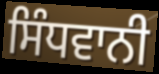
ਸਿੰਧਵਾਨੀ